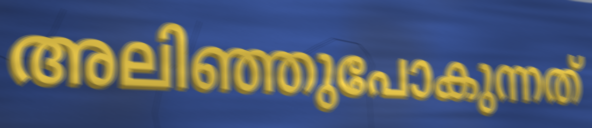
അലിഞ്ഞുപോകുന്നത്